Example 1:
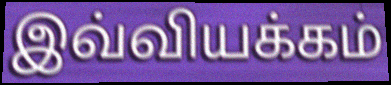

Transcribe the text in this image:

இவ்வியக்கம்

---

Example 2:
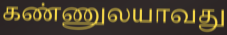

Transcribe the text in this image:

கண்ணுலயாவது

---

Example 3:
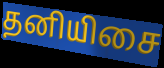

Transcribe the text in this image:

தனியிசை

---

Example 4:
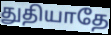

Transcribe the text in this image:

துதியாதே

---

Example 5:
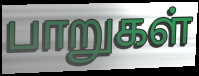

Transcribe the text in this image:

பாறுகள்